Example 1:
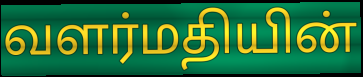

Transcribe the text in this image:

வளர்மதியின்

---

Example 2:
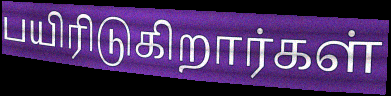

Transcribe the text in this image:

பயிரிடுகிறார்கள்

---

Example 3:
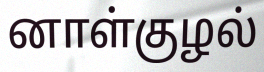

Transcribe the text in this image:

னாள்குழல்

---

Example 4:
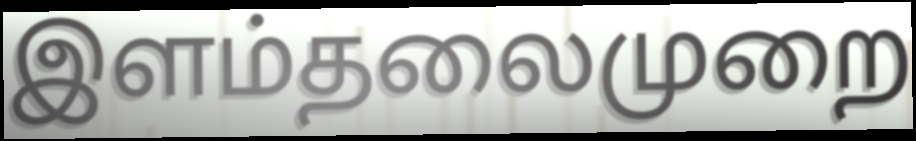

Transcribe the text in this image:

இளம்தலைமுறை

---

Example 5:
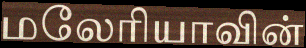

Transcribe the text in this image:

மலேரியாவின்